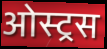
ओस्ट्रस